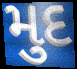
મુદ